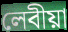
লেবীয়া